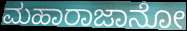
ಮಹಾರಾಜಾನೋ